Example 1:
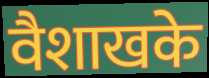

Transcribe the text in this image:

वैशाखके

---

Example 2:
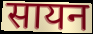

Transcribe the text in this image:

सायन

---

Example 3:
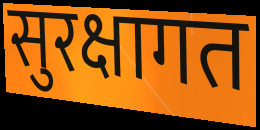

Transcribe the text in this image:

सुरक्षागत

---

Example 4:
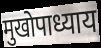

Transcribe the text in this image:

मुखोपाध्याय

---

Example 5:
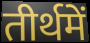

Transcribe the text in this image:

तीर्थमें